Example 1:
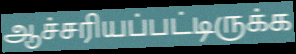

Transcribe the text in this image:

ஆச்சரியப்பட்டிருக்க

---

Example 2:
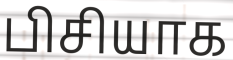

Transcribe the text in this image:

பிசியாக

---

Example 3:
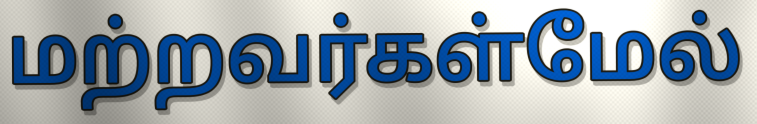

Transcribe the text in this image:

மற்றவர்கள்மேல்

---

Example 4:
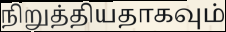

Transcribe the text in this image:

நிறுத்தியதாகவும்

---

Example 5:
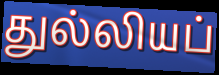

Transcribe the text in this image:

துல்லியப்